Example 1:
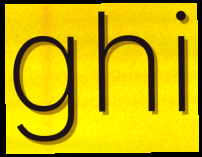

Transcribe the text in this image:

ghi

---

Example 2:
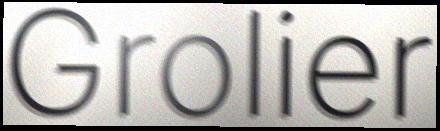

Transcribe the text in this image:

Grolier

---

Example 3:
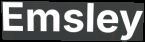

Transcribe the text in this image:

Emsley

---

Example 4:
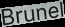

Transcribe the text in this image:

Brunel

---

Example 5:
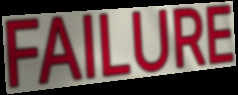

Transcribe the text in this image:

FAILURE